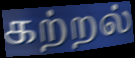
கற்றல்